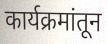
कार्यक्रमांतून